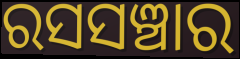
ରସସଞ୍ଚାର